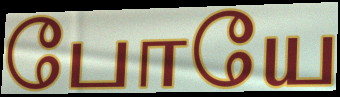
போயே